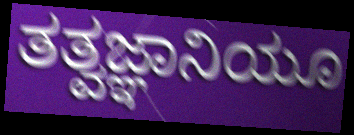
ತತ್ವಜ್ಞಾನಿಯೂ